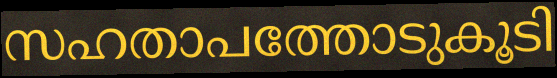
സഹതാപത്തോടുകൂടി